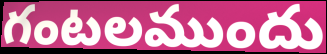
గంటలముందు